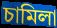
চামিলা